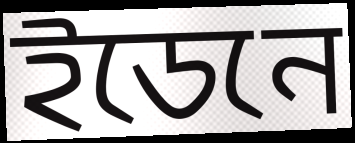
ইডেনে